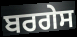
ਬਰਗੇਸ